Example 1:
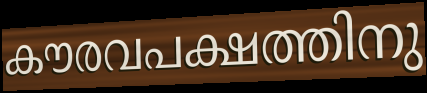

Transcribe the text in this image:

കൗരവപക്ഷത്തിനു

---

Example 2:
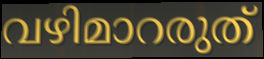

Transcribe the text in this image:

വഴിമാറരുത്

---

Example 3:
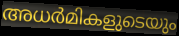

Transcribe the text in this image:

അധർമികളുടെയും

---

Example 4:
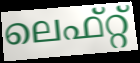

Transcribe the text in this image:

ലെഫ്റ്റ്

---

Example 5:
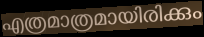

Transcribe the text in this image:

എത്രമാത്രമായിരിക്കും